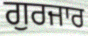
ਗੁਰਜਾਰ